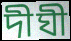
দীঘী